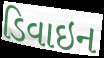
ડિવાઇન